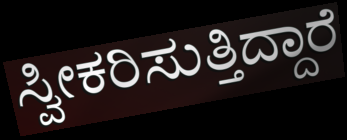
ಸ್ವೀಕರಿಸುತ್ತಿದ್ದಾರೆ